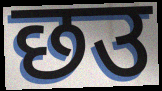
छउ